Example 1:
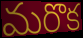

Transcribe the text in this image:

మరొక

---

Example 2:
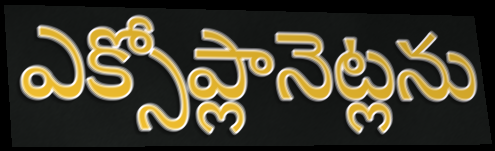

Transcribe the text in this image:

ఎక్సోప్లానెట్లను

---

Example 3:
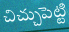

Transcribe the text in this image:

చిచ్చుపెట్టి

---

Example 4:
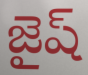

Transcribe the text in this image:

జైష్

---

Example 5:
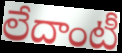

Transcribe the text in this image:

లేదాంటీ